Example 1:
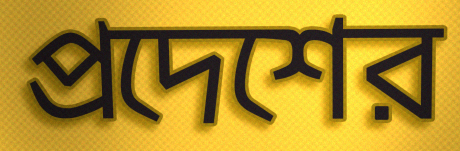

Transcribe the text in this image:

প্রদেশের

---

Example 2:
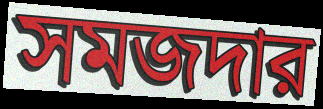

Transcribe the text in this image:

সমজদার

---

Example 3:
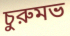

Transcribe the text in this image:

চুরুমভ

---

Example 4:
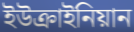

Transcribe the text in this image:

ইউক্রাইনিয়ান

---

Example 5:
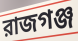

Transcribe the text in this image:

রাজগঞ্জ